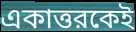
একাত্তরকেই